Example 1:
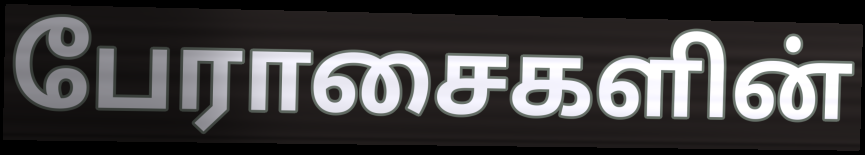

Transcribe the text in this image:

பேராசைகளின்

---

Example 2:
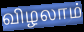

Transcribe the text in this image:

விழலாம்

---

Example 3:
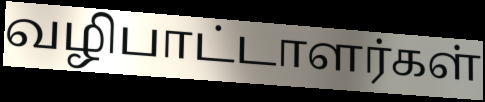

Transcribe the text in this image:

வழிபாட்டாளர்கள்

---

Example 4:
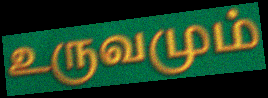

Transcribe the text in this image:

உருவமும்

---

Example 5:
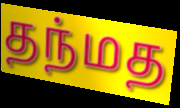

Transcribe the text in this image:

தந்மத